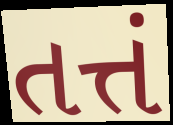
તત્તં